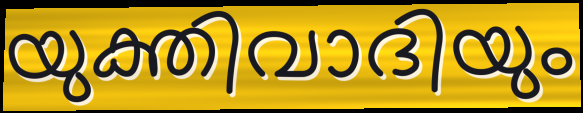
യുക്തിവാദിയും